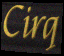
Cirq